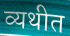
व्यथीत